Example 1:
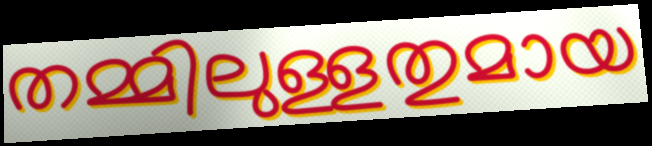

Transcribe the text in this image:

തമ്മിലുള്ളതുമായ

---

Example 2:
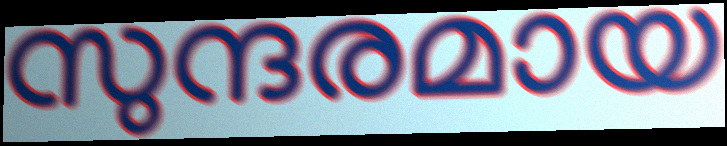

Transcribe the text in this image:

സുന്ദരമായ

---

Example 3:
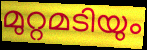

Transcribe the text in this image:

മുറ്റമടിയും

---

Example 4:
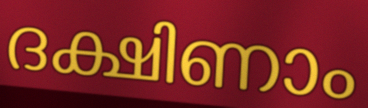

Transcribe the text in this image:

ദക്ഷിണാം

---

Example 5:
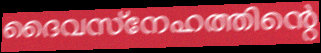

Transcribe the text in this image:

ദൈവസ്‌നേഹത്തിന്റെ